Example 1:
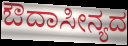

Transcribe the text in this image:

ಔದಾಸೀನ್ಯದ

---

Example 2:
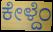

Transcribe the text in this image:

ಕೇಳ್ದೆಂ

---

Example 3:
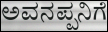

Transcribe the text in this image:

ಅವನಪ್ಪನಿಗೆ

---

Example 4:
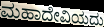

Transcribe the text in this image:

ಮಹಾದೇವಿಯದು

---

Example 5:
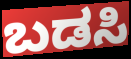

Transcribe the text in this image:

ಬಡಸಿ